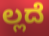
ಲ್ಲದೆ